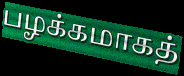
பழக்கமாகத்